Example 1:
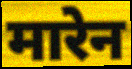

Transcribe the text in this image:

मारेन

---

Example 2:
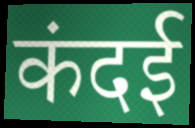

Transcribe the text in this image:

कंदई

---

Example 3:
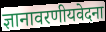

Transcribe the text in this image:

ज्ञानावरणीयवेदना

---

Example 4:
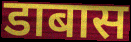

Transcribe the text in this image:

डाबास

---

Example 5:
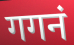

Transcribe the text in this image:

गगनं